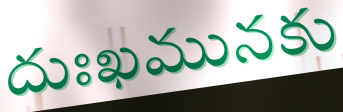
దుఃఖమునకు